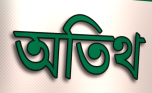
অতিথ